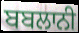
ਬਬਲਾਨੀ